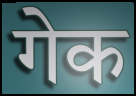
गेक